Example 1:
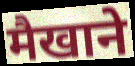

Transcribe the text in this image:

मैखाने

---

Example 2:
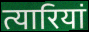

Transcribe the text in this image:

त्यारियां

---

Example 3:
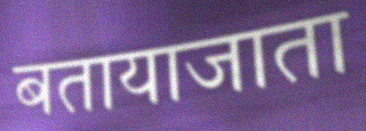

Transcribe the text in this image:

बतायाजाता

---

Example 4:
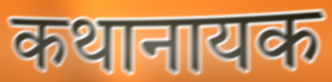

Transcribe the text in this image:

कथानायक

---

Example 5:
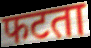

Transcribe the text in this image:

फटता